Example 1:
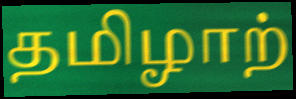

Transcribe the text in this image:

தமிழாற்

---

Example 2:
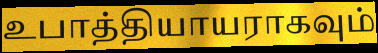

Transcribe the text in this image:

உபாத்தியாயராகவும்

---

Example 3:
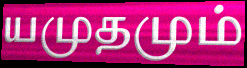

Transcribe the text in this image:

யமுதமும்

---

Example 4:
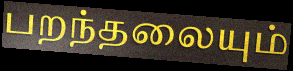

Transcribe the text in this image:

பறந்தலையும்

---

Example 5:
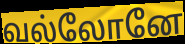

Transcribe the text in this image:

வல்லோனே